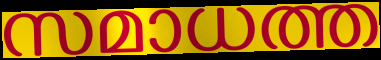
സമാധത്ത